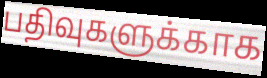
பதிவுகளுக்காக